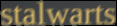
stalwarts